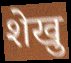
शेखु